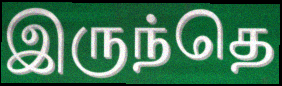
இருந்தெ